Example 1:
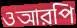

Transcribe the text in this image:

ওআরপি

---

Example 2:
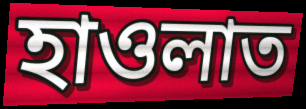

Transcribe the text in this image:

হাওলাত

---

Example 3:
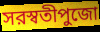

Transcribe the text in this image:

সরস্বতীপুজো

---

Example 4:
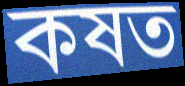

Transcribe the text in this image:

কষত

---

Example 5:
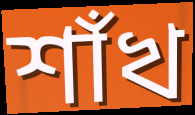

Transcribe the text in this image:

শাঁখ